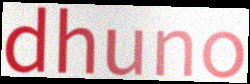
dhuno